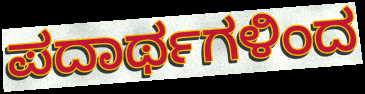
ಪದಾರ್ಥಗಳಿಂದ